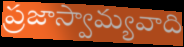
ప్రజాస్వామ్యవాది